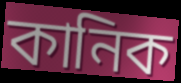
কানিক